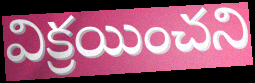
విక్రయించని